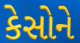
કેસોને